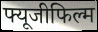
फ्यूजीफिल्म